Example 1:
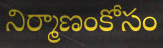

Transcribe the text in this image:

నిర్మాణంకోసం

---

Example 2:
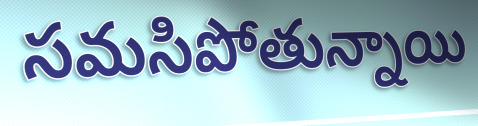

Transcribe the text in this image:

సమసిపోతున్నాయి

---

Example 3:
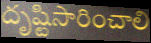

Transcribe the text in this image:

దృష్టిసారించాలి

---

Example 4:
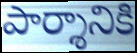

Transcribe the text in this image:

పార్శానికి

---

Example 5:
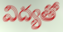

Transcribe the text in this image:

విద్యతో